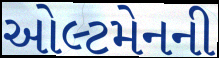
ઓલ્ટમેનની